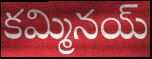
కమ్మినయ్